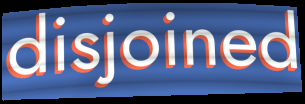
disjoined